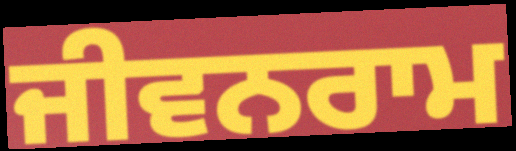
ਜੀਵਨਰਾਮ